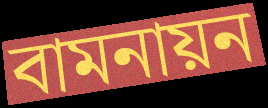
বামনায়ন